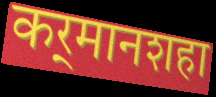
कर्मानशहा